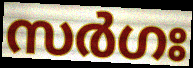
സർഗഃ